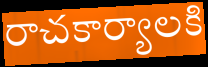
రాచకార్యాలకి